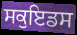
ਸਕੁਇਡਸ